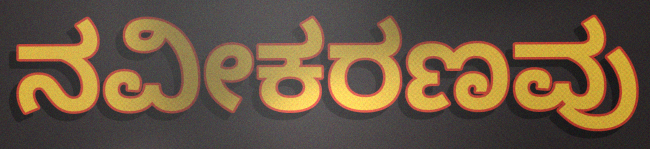
ನವೀಕರಣವು